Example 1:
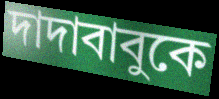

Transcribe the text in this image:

দাদাবাবুকে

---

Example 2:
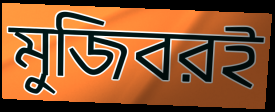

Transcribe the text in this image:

মুজিবরই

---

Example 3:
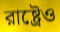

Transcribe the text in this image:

রাষ্ট্রেও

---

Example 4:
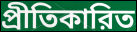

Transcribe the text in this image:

প্রীতিকারিত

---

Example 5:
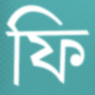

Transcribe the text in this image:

ফি